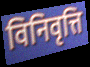
विनिवृत्ति